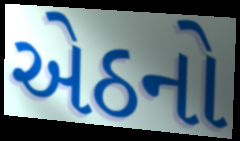
એઠનો